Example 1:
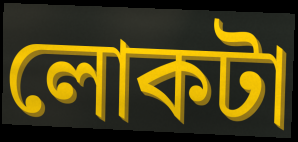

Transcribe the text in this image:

লোকটা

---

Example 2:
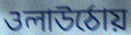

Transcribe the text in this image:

ওলাউঠোয়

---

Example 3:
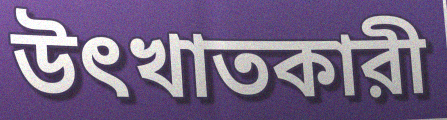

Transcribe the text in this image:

উৎখাতকারী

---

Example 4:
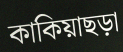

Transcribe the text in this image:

কাকিয়াছড়া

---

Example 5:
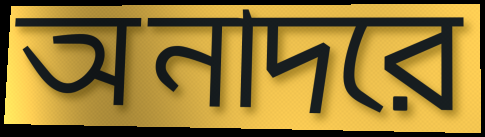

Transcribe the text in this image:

অনাদরে